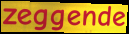
zeggende